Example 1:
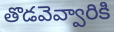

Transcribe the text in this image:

తొడవెవ్వారికి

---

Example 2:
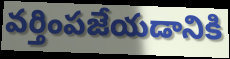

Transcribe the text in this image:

వర్తింపజేయడానికి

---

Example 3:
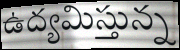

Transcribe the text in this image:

ఉద్యమిస్తున్న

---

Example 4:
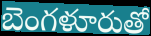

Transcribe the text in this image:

బెంగళూరుతో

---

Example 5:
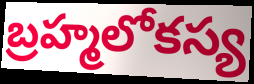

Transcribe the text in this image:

బ్రహ్మలోకస్య